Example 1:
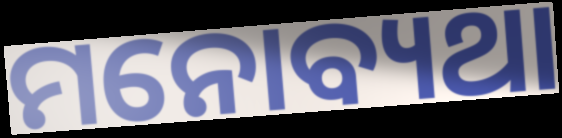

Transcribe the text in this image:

ମନୋବ୍ୟଥା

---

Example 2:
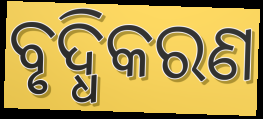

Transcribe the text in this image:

ବୃଦ୍ଧିକରଣ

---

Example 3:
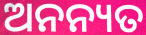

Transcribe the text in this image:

ଅନନ୍ୟତ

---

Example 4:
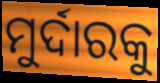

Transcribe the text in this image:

ମୁର୍ଦାରକୁ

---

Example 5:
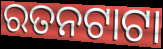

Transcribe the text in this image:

ରତନଟାଟା